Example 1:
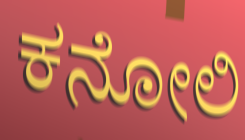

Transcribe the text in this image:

ಕನೋಲಿ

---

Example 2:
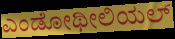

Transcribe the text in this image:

ಎಂಡೋಥೀಲಿಯಲ್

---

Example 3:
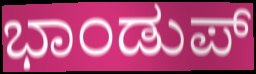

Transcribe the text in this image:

ಭಾಂಡುಪ್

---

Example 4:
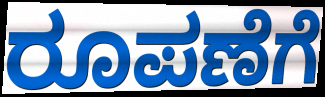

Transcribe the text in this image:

ರೂಪಣೆಗೆ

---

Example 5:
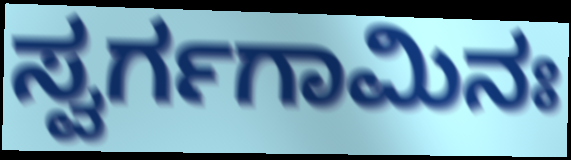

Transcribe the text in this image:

ಸ್ವರ್ಗಗಾಮಿನಃ